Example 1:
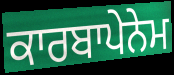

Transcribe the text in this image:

ਕਾਰਬਾਪੇਨੇਮ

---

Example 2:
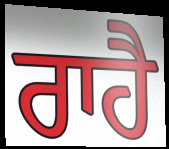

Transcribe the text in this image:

ਰਾਹੈ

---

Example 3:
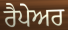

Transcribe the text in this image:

ਰੈਪੇਅਰ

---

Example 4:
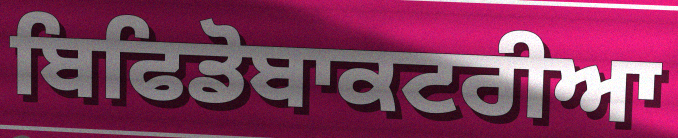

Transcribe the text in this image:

ਬਿਫਿਡੋਬਾਕਟਰੀਆ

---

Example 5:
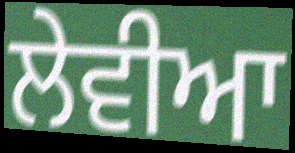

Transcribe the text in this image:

ਲੇਵੀਆ